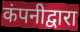
कंपनीद्वारा